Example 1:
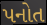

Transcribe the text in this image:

પનોત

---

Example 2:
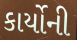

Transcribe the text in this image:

કાર્યોની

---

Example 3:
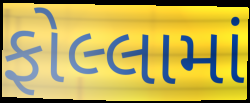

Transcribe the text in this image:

ફોલ્લામાં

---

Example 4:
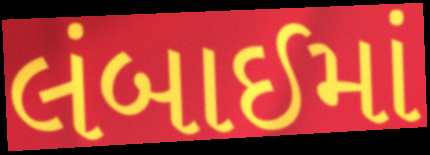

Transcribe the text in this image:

લંબાઈમાં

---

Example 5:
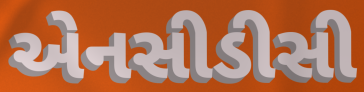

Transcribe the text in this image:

એનસીડીસી